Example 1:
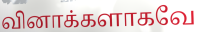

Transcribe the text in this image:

வினாக்களாகவே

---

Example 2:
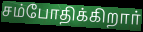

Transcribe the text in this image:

சம்போதிக்கிறார்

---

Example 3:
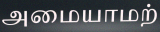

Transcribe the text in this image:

அமையாமற்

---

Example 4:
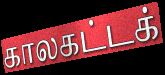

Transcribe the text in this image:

காலகட்டக்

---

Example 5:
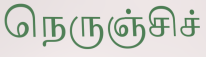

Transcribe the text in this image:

நெருஞ்சிச்